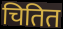
चितित